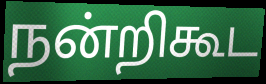
நன்றிகூட